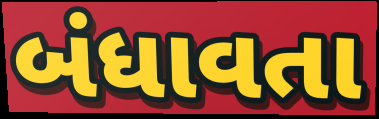
બંધાવતા